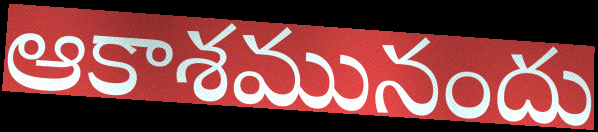
ఆకాశమునందు